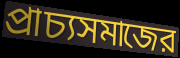
প্রাচ্যসমাজের